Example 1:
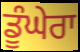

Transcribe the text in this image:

ਡੂੰਘੇਰਾ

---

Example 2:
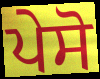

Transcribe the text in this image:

ਪੇਸੋ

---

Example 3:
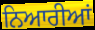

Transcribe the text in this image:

ਨਿਆਰੀਆਂ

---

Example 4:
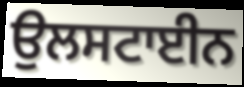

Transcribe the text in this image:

ਉਲਸਟਾਈਨ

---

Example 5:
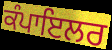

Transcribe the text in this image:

ਕੰਪਾਇਲਰ